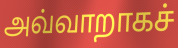
அவ்வாறாகச்